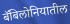
बॅबिलोनियातील